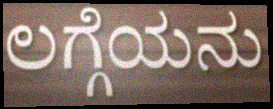
ಲಗ್ಗೆಯನು